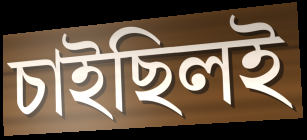
চাইছিলই